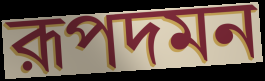
রূপদমন